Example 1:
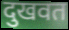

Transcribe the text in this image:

दुखवत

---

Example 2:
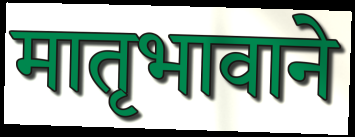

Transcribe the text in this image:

मातृभावाने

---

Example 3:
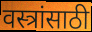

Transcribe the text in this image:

वस्त्रांसाठी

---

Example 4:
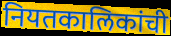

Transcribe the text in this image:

नियतकालिकांची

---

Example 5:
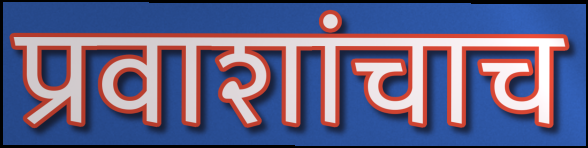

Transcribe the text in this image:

प्रवाशांचाच